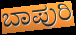
ಬಾಪುರಿ